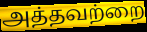
அத்தவற்றை